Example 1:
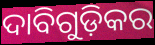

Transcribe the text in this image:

ଦାବିଗୁଡ଼ିକର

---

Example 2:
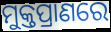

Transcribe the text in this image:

ମୁକ୍ତପ୍ରାଣରେ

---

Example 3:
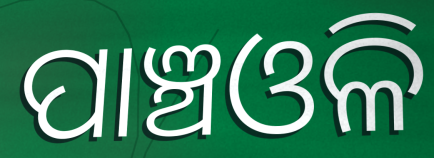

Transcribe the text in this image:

ପାଞ୍ଚଓଳି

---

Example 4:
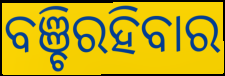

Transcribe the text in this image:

ବଞ୍ଚିରହିବାର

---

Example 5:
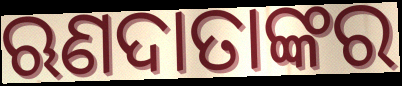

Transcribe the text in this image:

ଋଣଦାତାଙ୍କର